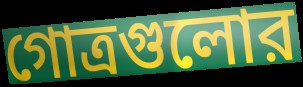
গোত্রগুলোর